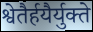
श्वेतैर्हयैर्युक्ते